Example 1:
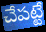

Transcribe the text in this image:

చేపట్టే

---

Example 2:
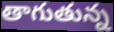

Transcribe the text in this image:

తాగుతున్న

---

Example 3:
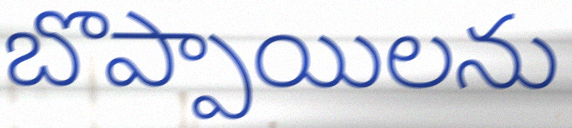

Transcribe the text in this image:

బొప్పాయిలను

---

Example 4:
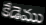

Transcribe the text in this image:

కేడెము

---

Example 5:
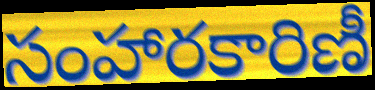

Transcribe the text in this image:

సంహారకారిణీ